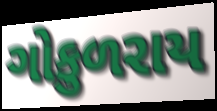
ગોકુળરાય